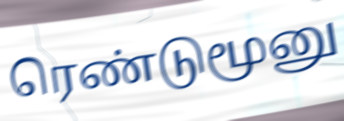
ரெண்டுமூனு